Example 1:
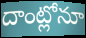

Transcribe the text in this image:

దాంట్లోనూ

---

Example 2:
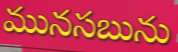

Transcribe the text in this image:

మునసబును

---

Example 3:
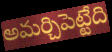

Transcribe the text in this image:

అమర్చిపెట్టేది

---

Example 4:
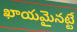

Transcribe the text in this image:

ఖాయమైనట్టే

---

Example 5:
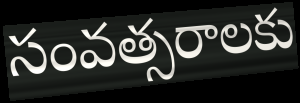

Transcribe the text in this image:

సంవత్సరాలకు